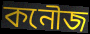
কনৌজ